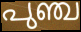
പുഞ്ച